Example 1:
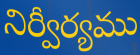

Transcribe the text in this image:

నిర్వీర్యము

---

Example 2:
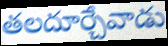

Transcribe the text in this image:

తలదూర్చేవాడు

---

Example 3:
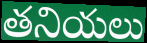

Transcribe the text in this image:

తనియలు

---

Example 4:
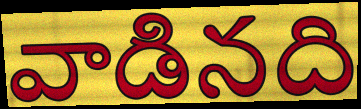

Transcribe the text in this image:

వాడినది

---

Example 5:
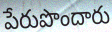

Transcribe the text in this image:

పేరుపొందారు